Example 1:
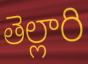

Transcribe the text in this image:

తెల్లారి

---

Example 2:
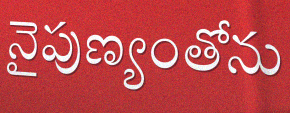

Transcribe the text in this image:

నైపుణ్యంతోను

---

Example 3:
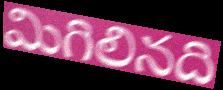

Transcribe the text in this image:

మిగిలినది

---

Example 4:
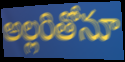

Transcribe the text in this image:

అల్లరితోనూ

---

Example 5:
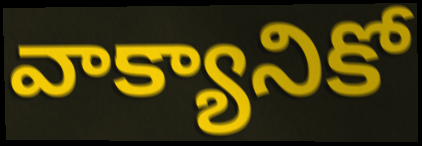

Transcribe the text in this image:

వాక్యానికో